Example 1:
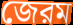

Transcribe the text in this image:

জেরম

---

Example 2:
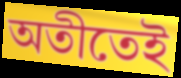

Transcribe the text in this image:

অতীতেই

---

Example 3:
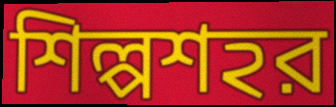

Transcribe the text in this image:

শিল্পশহর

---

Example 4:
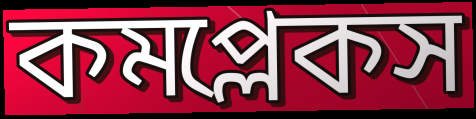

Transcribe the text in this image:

কমপ্লেকস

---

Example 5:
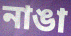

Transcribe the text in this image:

নাঙা